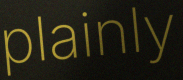
plainly